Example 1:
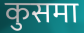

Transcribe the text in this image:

कुसमा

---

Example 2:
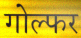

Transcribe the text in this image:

गोल्फर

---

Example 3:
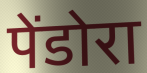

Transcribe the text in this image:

पेंडोरा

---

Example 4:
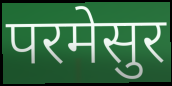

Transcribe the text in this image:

परमेसुर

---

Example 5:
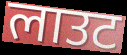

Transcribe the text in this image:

लाउट